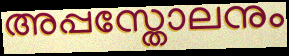
അപ്പസ്തോലനും